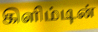
கிளிம்டின்